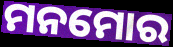
ମନମୋର